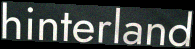
hinterland